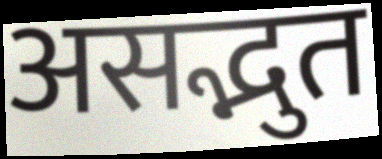
असद्भुत